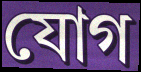
যোগ